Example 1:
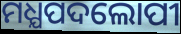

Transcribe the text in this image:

ମଧ୍ଯପଦଲୋପୀ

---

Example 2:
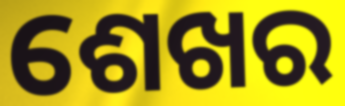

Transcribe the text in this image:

ଶେଖର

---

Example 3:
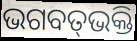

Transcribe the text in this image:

ଭଗବତ୍‌ଭକ୍ତି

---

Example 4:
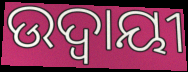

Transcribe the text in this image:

ଉଦ୍ବାୟୀ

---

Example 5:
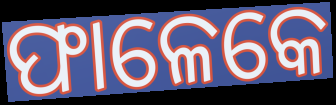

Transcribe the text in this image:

ଫାଳେକେ